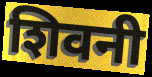
शिवनी